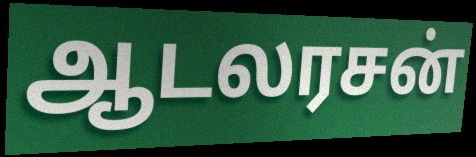
ஆடலரசன்